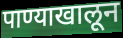
पाण्याखालून